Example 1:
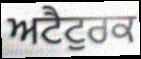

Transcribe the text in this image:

ਅਟੈਟੁਰਕ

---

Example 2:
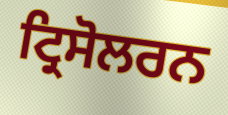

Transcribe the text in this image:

ਟ੍ਰਿਸੋਲਰਨ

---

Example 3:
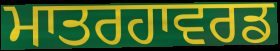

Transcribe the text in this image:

ਮਾਤਰਹਾਵਰਡ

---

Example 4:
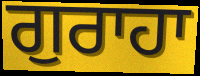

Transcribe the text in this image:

ਗੁਰਾਹਾ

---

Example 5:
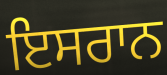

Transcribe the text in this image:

ਇਸਰਾਨ